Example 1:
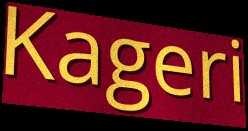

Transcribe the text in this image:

Kageri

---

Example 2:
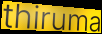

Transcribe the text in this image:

thiruma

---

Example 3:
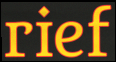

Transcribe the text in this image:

rief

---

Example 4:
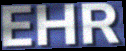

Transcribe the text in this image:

EHR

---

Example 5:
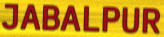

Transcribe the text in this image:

JABALPUR